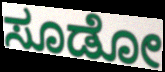
ಸೂಡೋ